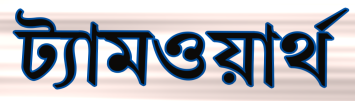
ট্যামওয়ার্থ